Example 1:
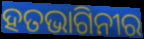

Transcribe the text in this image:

ହତଭାଗିନୀର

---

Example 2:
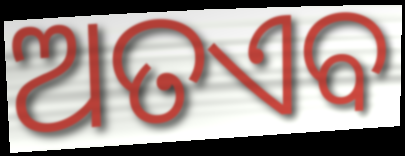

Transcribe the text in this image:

ଅତଏବ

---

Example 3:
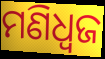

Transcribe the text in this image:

ମଣିଧ୍ୱଜ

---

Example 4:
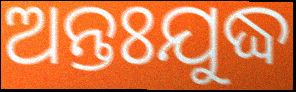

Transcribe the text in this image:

ଅନ୍ତଃଯୁଦ୍ଧ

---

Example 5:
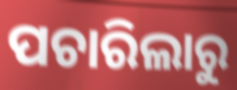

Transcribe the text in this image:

ପଚାରିଲାରୁ